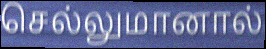
செல்லுமானால்